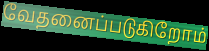
வேதனைப்படுகிறோம்